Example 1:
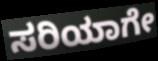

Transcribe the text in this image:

ಸರಿಯಾಗೇ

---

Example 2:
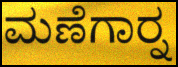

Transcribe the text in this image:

ಮಣೆಗಾರ್‍ನ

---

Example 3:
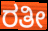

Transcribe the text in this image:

ರತೀ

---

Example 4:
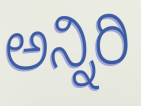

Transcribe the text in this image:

ಅನ್ನಿರಿ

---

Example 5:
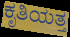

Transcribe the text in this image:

ಕೃತಿಯತ್ತ